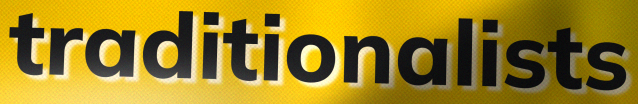
traditionalists